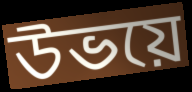
উভয়ে